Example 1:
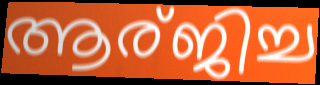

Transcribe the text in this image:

ആര്ജിച്ച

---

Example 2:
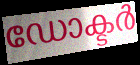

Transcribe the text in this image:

ഡോക്ടർ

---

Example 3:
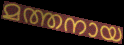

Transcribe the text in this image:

മത്തനായ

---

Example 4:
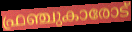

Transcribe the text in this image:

ഫ്രഞ്ചുകാരോട്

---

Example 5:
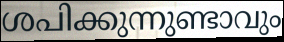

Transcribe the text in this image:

ശപിക്കുന്നുണ്ടാവും